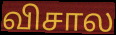
விசால